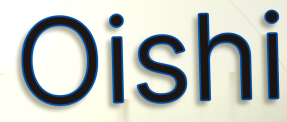
Oishi